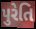
પુરેતિ